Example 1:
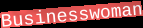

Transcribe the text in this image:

Businesswoman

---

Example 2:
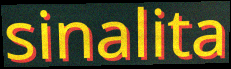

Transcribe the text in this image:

sinalita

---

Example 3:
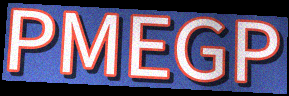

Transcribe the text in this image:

PMEGP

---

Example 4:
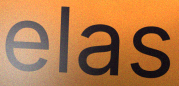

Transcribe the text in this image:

elas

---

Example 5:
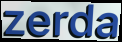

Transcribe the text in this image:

zerda